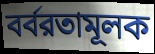
বর্বরতামূলক